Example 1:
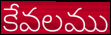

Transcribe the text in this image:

కేవలము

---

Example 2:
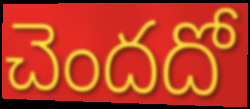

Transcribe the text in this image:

చెందదో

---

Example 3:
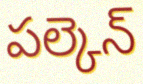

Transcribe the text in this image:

పల్కెన్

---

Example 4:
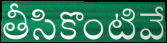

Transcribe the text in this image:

తీసికొంటివే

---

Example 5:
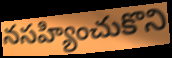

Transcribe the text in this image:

నసహ్యించుకొని